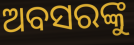
ଅବସରଙ୍କୁ